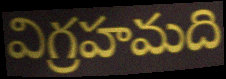
విగ్రహమది